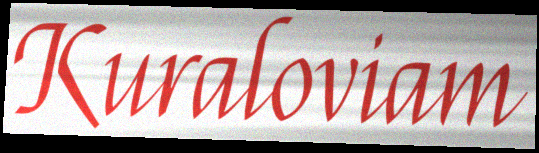
Kuraloviam